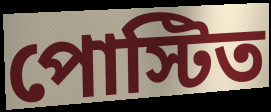
পোস্টিত